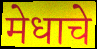
मेधाचे